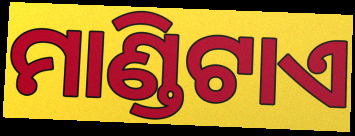
ମାଣ୍ଡିଟାଏ